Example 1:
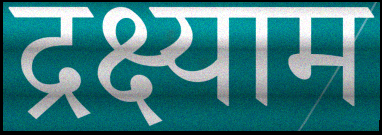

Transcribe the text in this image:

द्रक्ष्याम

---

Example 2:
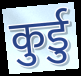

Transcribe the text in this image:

कुर्डु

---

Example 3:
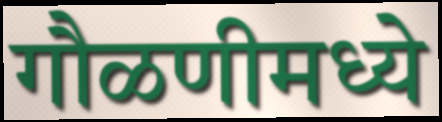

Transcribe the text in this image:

गौळणीमध्ये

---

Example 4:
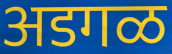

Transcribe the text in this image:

अडगळ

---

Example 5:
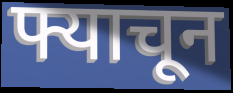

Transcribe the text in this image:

फ्याचून